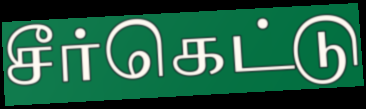
சீர்கெட்டு